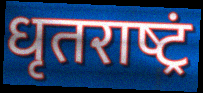
धृतराष्ट्रं